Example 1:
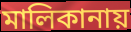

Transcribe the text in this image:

মালিকানায়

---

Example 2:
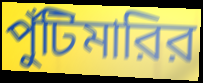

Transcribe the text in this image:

পুঁটিমারির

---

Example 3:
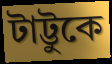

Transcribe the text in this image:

টাট্টুকে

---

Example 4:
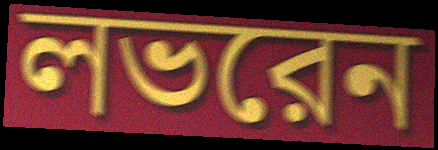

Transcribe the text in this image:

লভরেন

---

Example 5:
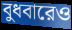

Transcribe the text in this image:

বুধবারেও